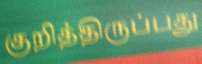
குறித்திருப்பது